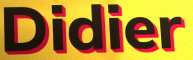
Didier